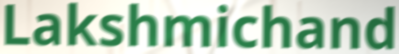
Lakshmichand